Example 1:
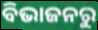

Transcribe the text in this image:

ବିଭାଜନରୁ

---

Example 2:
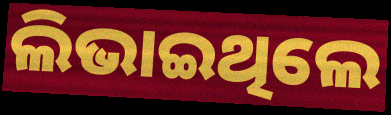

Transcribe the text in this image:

ଲିଭାଇଥିଲେ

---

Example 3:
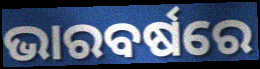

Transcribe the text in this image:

ଭାରବର୍ଷରେ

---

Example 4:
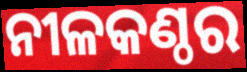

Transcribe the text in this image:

ନୀଳକଣ୍ଠର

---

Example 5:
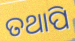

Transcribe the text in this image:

ତଥାପି